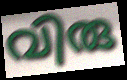
വിരു